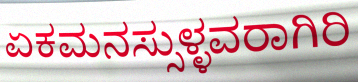
ಏಕಮನಸ್ಸುಳ್ಳವರಾಗಿರಿ